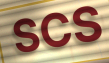
SCS